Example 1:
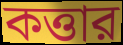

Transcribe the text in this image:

কত্তার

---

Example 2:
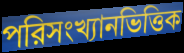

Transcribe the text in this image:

পরিসংখ্যানভিত্তিক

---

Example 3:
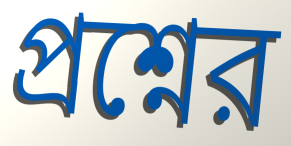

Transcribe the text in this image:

প্রশ্নের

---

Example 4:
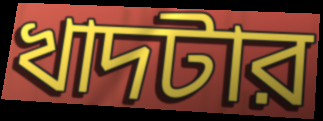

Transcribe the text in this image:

খাদটার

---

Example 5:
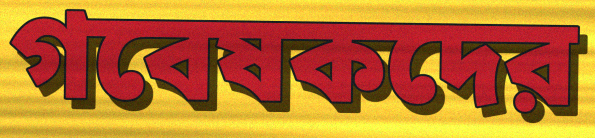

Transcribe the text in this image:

গবেষকদের